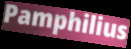
Pamphilius